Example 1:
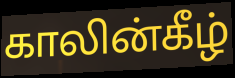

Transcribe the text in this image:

காலின்கீழ்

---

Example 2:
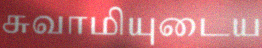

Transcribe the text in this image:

சுவாமியுடைய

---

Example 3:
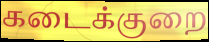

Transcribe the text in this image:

கடைக்குறை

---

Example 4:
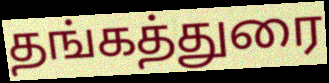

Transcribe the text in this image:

தங்கத்துரை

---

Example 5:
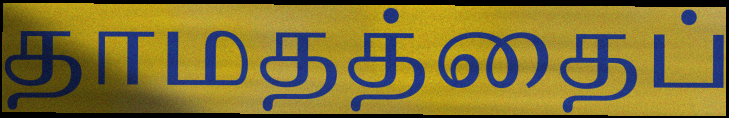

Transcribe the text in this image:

தாமதத்தைப்